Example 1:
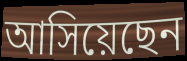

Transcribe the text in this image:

আসিয়েছেন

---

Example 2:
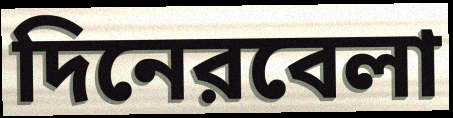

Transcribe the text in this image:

দিনেরবেলা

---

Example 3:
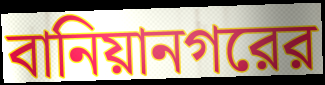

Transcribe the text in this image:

বানিয়ানগরের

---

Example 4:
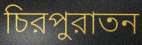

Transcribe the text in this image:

চিরপুরাতন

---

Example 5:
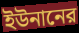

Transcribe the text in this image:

ইউনানের